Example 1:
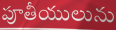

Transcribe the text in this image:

పూతీయులును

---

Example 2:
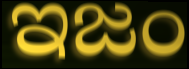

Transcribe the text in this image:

ఇజం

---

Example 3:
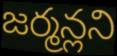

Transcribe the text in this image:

జర్మన్లని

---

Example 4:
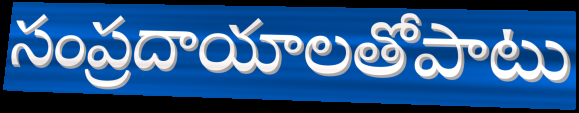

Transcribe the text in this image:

సంప్రదాయాలతోపాటు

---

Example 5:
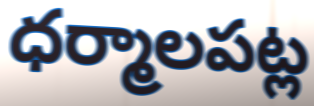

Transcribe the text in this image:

ధర్మాలపట్ల